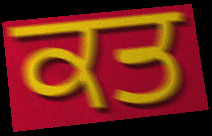
ਕਤ